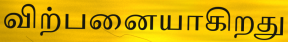
விற்பனையாகிறது